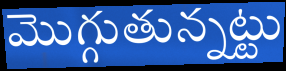
మొగ్గుతున్నట్టు